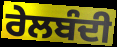
ਰੇਲਬੰਦੀ